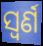
ସ୍ୱର୍ଣ